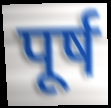
पूर्ष